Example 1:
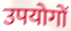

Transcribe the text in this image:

उपयोगों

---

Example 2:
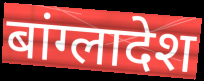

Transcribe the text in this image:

बांग्लादेश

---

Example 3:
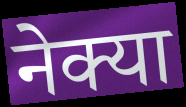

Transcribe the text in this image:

नेक्या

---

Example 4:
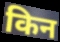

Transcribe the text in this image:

किन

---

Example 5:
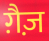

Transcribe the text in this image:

ग़ैज़